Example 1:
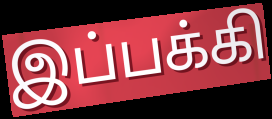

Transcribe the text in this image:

இப்பக்கி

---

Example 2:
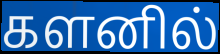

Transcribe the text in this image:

களனில்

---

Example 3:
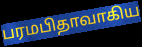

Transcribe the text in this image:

பரமபிதாவாகிய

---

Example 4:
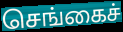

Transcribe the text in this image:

செங்கைச்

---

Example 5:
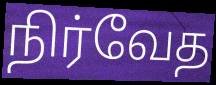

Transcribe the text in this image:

நிர்வேத